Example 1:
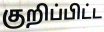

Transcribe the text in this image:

குறிப்பிட்ட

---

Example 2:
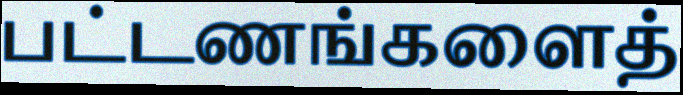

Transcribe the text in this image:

பட்டணங்களைத்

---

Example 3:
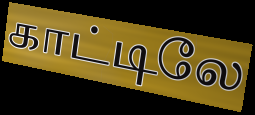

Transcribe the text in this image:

காட்டிலே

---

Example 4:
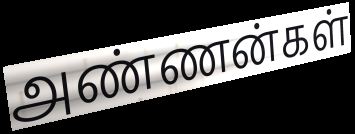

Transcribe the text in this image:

அண்ணன்கள்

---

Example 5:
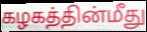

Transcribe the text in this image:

கழகத்தின்மீது